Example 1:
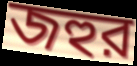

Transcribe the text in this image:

জহুর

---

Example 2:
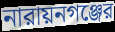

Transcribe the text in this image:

নারায়নগঞ্জের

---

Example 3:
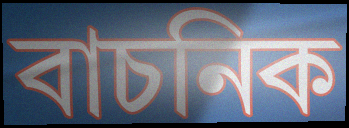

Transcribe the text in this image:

বাচনিক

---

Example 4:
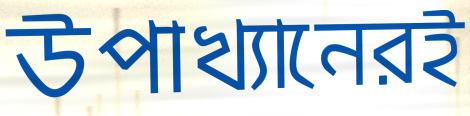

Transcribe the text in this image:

উপাখ্যানেরই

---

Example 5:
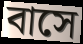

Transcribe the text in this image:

বাসে